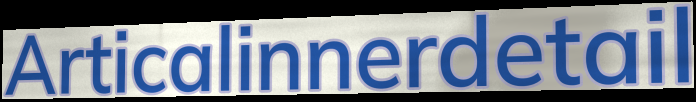
Articalinnerdetail